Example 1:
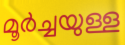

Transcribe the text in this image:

മൂർച്ചയുള്ള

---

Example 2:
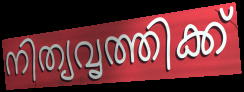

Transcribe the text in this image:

നിത്യവൃത്തിക്ക്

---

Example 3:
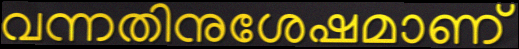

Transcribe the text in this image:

വന്നതിനുശേഷമാണ്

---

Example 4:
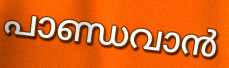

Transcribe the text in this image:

പാണ്ഡവാൻ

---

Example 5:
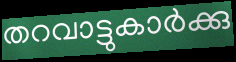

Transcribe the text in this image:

തറവാട്ടുകാർക്കു